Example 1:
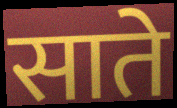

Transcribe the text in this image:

साते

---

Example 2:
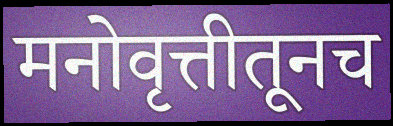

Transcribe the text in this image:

मनोवृत्तीतूनच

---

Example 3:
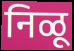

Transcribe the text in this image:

निळू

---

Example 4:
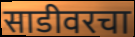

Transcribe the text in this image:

साडीवरचा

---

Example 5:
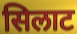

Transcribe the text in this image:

सिलाट